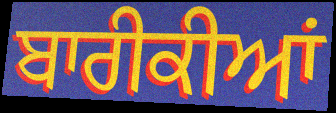
ਬਾਰੀਕੀਆਂ